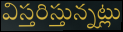
విస్తరిస్తున్నట్లు